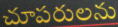
చూపరులను